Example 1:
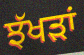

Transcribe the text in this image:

ਝੱਖੜਾਂ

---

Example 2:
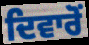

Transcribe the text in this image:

ਦਿਵਾਰੋਂ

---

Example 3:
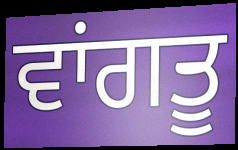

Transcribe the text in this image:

ਵਾਂਗਤੂ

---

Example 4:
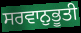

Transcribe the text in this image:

ਸਰਵਾਨੁਭੂਤੀ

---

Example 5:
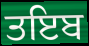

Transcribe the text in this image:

ਤਇਬ